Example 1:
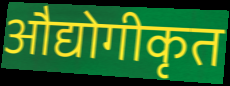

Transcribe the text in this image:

औद्योगीकृत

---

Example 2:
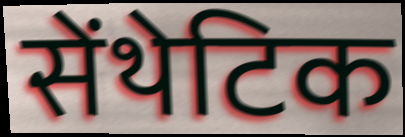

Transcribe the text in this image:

सेंथेटिक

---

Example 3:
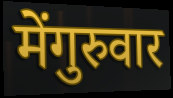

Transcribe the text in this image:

मेंगुरुवार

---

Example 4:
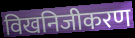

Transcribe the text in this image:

विखनिजीकरण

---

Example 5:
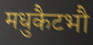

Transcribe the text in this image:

मधुकैटभौ